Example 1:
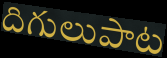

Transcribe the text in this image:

దిగులుపాట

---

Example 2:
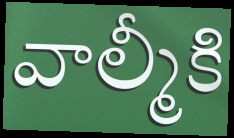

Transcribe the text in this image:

వాల్మీకి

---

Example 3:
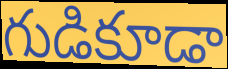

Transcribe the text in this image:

గుడికూడా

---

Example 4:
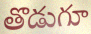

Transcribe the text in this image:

తొడుగూ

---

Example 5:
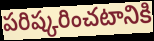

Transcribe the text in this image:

పరిష్కరించటానికి